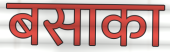
बसाका